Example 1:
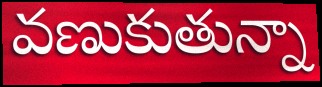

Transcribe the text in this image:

వణుకుతున్నా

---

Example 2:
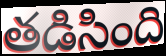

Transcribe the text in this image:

తడిసింది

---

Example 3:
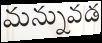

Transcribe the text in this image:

మన్నువడ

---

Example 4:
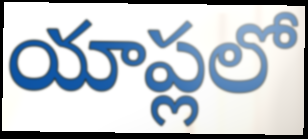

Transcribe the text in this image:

యాప్లలో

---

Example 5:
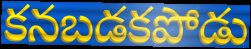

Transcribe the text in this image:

కనబడకపోడు